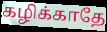
கழிக்காதே